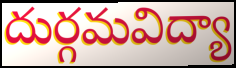
దుర్గమవిద్యా